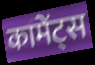
कामेंट्स